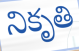
నికృతి